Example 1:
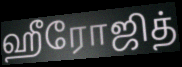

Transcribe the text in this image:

ஹீரோஜித்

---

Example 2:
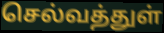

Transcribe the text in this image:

செல்வத்துள்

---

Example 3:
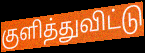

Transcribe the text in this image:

குளித்துவிட்டு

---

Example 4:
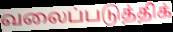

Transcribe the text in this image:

வலைப்படுத்திக்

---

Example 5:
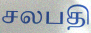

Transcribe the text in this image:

சலபதி